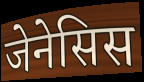
जेनेसिस